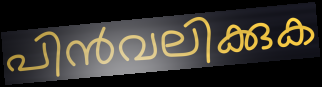
പിൻവലിക്കുക